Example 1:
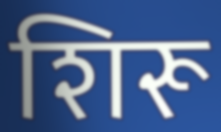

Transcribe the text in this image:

शिरू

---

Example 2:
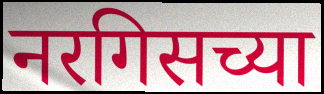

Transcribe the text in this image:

नरगिसच्या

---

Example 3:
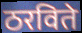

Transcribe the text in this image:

ठरविते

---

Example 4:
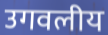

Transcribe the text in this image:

उगवलीय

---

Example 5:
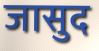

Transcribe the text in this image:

जासुद